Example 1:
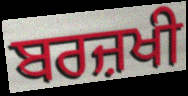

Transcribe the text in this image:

ਬਰਜ਼ਖੀ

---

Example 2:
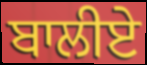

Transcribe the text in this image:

ਬਾਲੀਏ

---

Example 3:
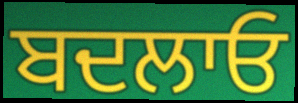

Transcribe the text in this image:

ਬਦਲਾਓ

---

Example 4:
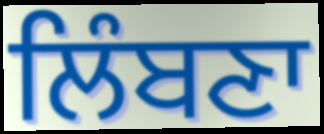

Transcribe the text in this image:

ਲਿੰਬਣਾ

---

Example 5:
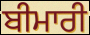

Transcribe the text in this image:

ਬੀਮਾਰੀ